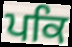
ਪਕਿ